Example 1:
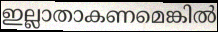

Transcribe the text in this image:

ഇല്ലാതാകണമെങ്കിൽ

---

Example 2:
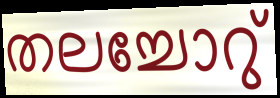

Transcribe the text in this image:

തലച്ചോറു്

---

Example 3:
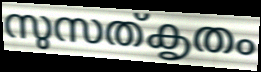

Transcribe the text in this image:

സുസത്കൃതം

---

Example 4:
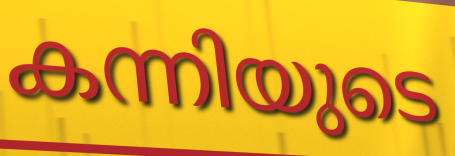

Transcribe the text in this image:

കന്നിയുടെ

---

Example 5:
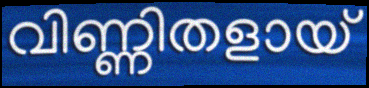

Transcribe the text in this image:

വിണ്ണിതളായ്